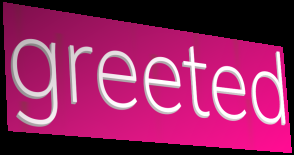
greeted